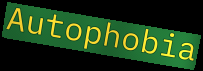
Autophobia